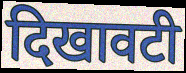
दिखावटी